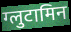
ग्लुटामिन